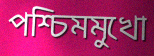
পশ্চিমমুখো